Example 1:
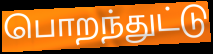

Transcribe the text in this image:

பொறந்துட்டு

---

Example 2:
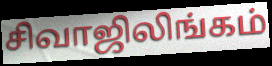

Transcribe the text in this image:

சிவாஜிலிங்கம்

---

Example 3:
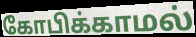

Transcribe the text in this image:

கோபிக்காமல்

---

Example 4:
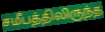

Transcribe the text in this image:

சமீபத்திலிருந்த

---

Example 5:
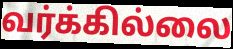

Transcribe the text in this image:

வர்க்கில்லை